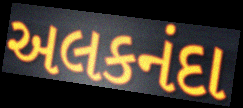
અલકનંદા